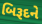
બિરૂદને